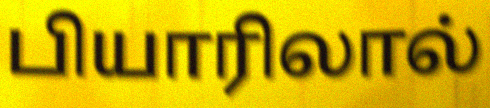
பியாரிலால்